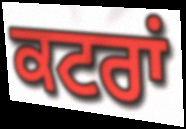
ਕਟਰਾਂ